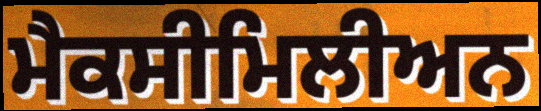
ਮੈਕਸੀਮਿਲੀਅਨ